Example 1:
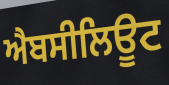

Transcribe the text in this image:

ਐਬਸੀਲਿਊਟ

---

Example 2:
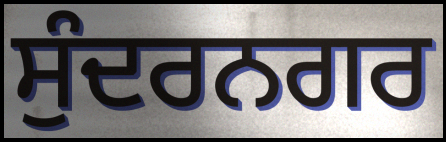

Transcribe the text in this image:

ਸੁੰਦਰਨਗਰ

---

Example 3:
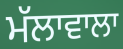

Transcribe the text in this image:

ਮੱਲਾਵਾਲਾ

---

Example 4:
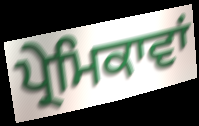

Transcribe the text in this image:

ਪ੍ਰੇਮਿਕਾਵਾਂ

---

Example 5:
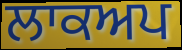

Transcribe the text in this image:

ਲਾਕਅਪ